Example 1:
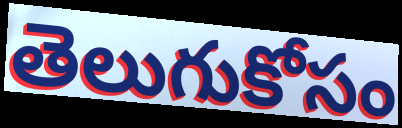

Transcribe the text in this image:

తెలుగుకోసం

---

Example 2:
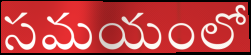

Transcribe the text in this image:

సమయంలో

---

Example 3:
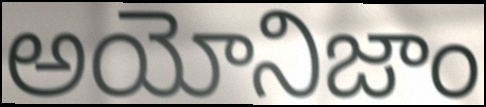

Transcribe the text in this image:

అయోనిజాం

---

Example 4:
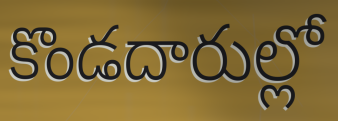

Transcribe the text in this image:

కొండదారుల్లో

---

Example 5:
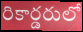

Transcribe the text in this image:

రికార్డరులో